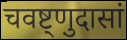
चवष्ट्णुदासां